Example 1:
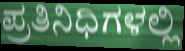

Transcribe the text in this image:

ಪ್ರತಿನಿಧಿಗಳಲ್ಲಿ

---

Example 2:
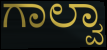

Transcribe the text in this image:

ಗಾಲ್ವಾ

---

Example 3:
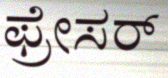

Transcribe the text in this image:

ಫ್ರೇಸರ್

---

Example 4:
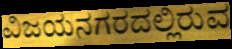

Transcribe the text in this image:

ವಿಜಯನಗರದಲ್ಲಿರುವ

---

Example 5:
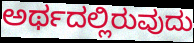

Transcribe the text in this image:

ಅರ್ಥದಲ್ಲಿರುವುದು